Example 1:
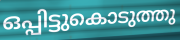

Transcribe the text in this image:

ഒപ്പിട്ടുകൊടുത്തു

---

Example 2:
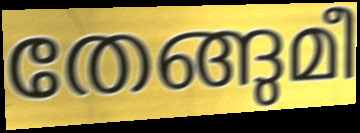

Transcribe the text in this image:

തേങ്ങുമീ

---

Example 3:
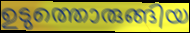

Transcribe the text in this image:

ഉടുത്തൊരുങ്ങിയ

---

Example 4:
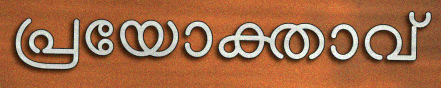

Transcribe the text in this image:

പ്രയോക്താവ്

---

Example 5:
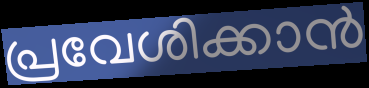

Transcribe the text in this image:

പ്രവേശിക്കാൻ